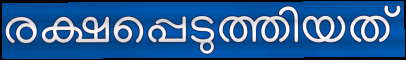
രക്ഷപ്പെടുത്തിയത്